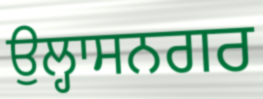
ਉਲ੍ਹਾਸਨਗਰ